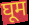
घूम